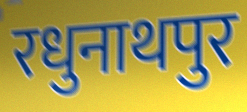
रधुनाथपुर